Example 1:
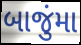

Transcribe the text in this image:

બાજુંમા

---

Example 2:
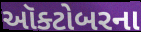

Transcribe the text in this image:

ઑક્ટોબરના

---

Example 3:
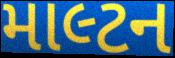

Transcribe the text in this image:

માલ્ટન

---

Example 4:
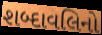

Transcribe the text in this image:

શબ્દાવલિનો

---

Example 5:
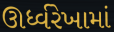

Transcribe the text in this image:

ઊર્ધ્વરેખામાં